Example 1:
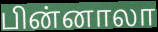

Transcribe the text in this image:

பின்னாலா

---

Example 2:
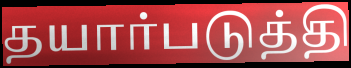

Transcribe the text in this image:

தயார்படுத்தி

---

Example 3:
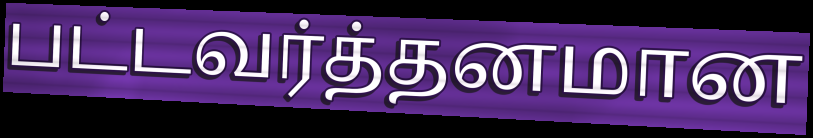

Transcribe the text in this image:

பட்டவர்த்தனமான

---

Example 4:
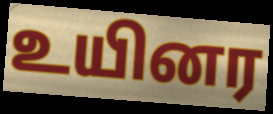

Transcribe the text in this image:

உயினர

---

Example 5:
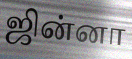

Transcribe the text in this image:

ஜின்னா